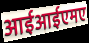
आईआईएमए